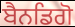
ਬੈਨਡਿਗੋ